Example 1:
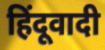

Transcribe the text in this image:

हिंदूवादी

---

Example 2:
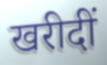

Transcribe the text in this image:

खरीदीं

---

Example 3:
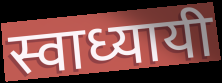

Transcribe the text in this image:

स्वाध्यायी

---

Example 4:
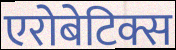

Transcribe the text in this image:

एरोबेटिक्स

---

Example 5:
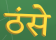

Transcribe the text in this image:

ठंसे